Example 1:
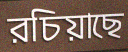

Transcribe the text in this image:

রচিয়াছে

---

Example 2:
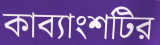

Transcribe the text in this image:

কাব্যাংশটির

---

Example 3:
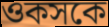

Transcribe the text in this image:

ওকসকে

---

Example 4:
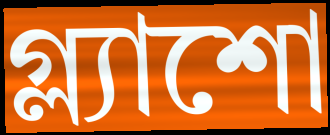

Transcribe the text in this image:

গ্ল্যাশো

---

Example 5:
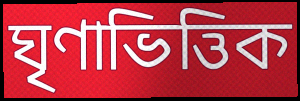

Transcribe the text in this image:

ঘৃণাভিত্তিক